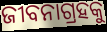
ଜୀବନାଗ୍ରହକୁ